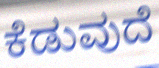
ಕೆಡುವುದೆ